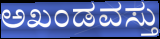
ಅಖಂಡವಸ್ತು